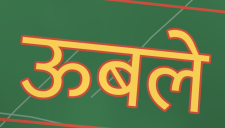
ऊबले